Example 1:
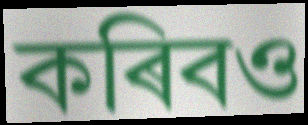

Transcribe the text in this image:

কৰিবও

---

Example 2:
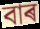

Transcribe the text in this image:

বাৰ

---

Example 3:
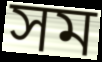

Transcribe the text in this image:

সম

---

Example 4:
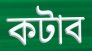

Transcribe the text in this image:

কটাব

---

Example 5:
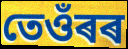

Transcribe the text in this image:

তেওঁৰৰ